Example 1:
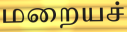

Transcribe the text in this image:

மறையச்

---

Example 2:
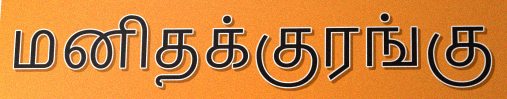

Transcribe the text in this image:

மனிதக்குரங்கு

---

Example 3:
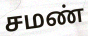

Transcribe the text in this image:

சமண்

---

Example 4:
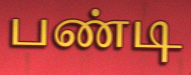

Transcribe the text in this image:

பண்டி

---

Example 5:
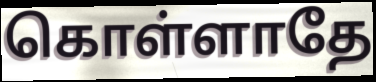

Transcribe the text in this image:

கொள்ளாதே